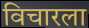
विचारला